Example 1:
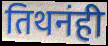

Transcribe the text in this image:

तिथनंही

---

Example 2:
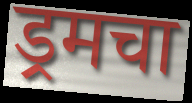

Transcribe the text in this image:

ड्रमचा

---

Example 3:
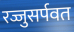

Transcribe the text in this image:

रज्जुसर्पवत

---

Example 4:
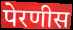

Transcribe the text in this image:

पेरणीस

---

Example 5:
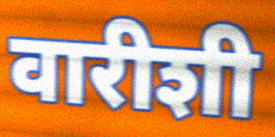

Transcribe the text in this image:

वारीशी